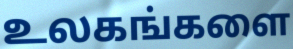
உலகங்களை